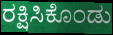
ರಕ್ಷಿಸಿಕೊಂಡು